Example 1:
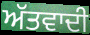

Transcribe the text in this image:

ਅੱਤਵਾਦੀ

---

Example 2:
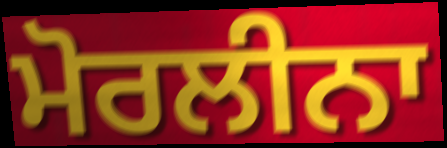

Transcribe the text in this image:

ਮੋਰਲੀਨਾ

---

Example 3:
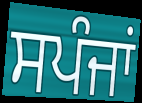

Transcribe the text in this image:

ਸਪੰਜਾਂ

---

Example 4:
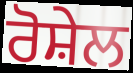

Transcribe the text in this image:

ਰੋਸ਼ੇਲ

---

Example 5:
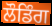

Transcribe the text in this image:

ਲੌਡਿੰਗ